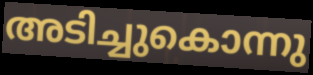
അടിച്ചുകൊന്നു